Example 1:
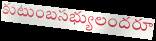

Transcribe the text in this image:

కుటుంబసభ్యులందరూ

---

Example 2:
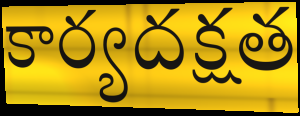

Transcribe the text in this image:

కార్యదక్షత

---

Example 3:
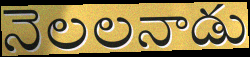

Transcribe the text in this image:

నెలలనాడు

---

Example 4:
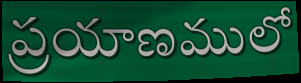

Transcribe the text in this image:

ప్రయాణములో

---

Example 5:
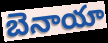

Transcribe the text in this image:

బెనాయా